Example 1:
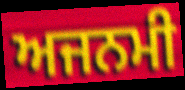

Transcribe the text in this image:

ਅਜਨਮੀ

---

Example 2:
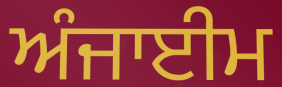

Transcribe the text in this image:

ਅੰਜਾਈਮ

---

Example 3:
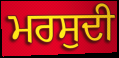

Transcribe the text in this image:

ਮਰਸੁਦੀ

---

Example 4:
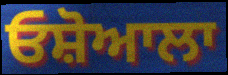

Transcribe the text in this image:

ਓਸ਼ੋਆਲਾ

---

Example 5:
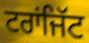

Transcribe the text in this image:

ਟਰਾਂਜਿੱਟ